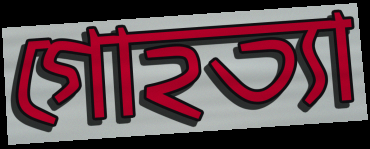
গোহত্যা